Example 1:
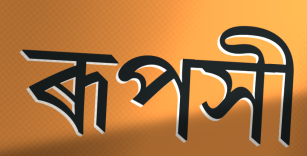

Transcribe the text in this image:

ৰূপসী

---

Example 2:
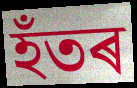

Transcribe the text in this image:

হঁতৰ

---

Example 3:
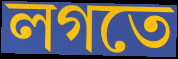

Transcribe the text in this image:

লগতে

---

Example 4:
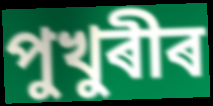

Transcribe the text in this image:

পুখুৰীৰ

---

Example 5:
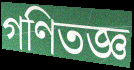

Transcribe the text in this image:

গণিতজ্ঞ